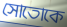
সোতোকে